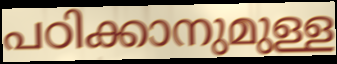
പഠിക്കാനുമുള്ള